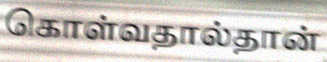
கொள்வதால்தான்